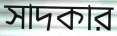
সাদকার